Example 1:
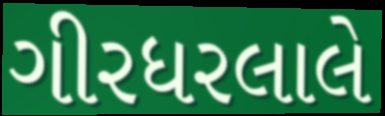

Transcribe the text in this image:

ગીરધરલાલે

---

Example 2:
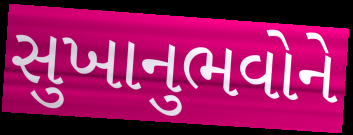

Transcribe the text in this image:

સુખાનુભવોને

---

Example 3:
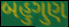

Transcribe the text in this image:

બહુગુણ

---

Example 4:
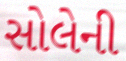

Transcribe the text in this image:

સોલેની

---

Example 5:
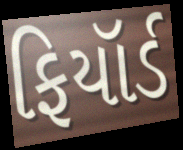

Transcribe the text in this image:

ફિયૉર્ડ